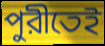
পুরীতেই